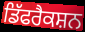
ਡਿੱਫਰੈਕਸ਼ਨ